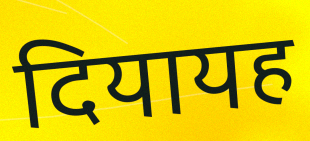
दियायह